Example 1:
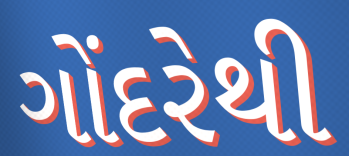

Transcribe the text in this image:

ગોંદરેથી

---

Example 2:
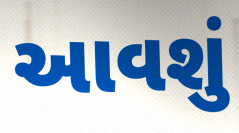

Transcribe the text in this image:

આવશું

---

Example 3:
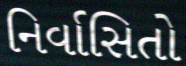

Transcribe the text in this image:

નિર્વાસિતો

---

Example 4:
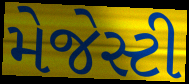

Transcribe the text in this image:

મેજેસ્ટી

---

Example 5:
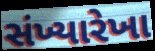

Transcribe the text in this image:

સંખ્યારેખા